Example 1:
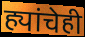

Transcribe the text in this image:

ह्यांचेही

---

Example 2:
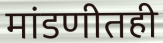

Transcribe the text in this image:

मांडणीतही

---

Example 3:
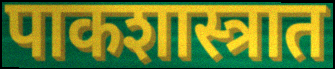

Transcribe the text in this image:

पाकशास्त्रात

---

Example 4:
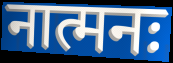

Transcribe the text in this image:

नात्मनः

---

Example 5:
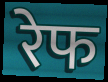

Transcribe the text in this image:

रेफ